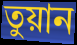
তুয়ান